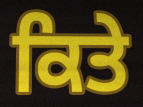
ਕਿਤੇ